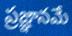
ప్రజ్ఞానమే